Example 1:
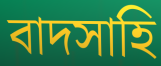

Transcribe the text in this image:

বাদসাহি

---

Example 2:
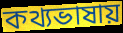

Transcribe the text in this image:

কথ্যভাষায়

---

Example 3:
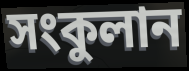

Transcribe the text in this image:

সংকুলান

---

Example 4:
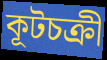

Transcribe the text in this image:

কূটচক্রী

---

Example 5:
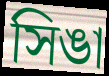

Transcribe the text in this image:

সিঙা